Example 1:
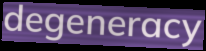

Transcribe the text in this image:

degeneracy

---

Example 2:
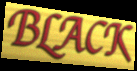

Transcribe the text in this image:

BLACK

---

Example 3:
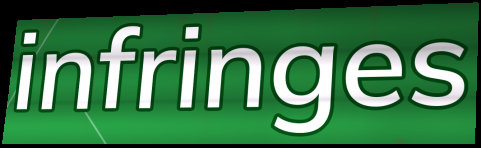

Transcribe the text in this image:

infringes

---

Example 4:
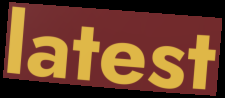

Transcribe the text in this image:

latest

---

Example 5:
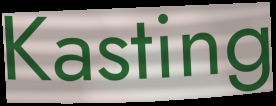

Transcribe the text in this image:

Kasting